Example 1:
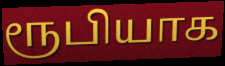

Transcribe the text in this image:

ரூபியாக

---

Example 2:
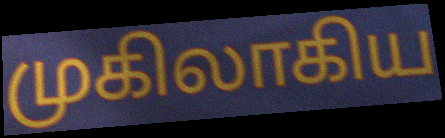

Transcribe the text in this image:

முகிலாகிய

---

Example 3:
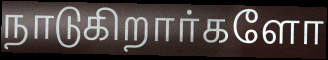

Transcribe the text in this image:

நாடுகிறார்களோ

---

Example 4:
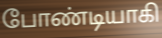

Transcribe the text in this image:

போண்டியாகி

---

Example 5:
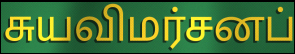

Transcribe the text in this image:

சுயவிமர்சனப்